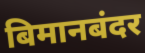
बिमानबंदर